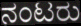
ನಂಟರು